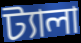
ট্যালা